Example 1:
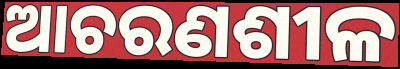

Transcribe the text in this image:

ଆଚରଣଶୀଳ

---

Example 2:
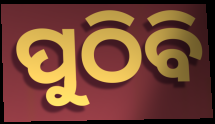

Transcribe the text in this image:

ପୁଠିବି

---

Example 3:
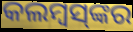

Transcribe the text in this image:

କଲମ୍ୱସ୍‌ଙ୍କର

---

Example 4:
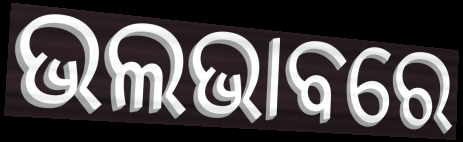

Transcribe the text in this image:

ଭଲଭାବରେ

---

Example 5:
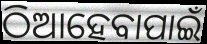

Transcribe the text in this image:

ଠିଆହେବାପାଇଁ